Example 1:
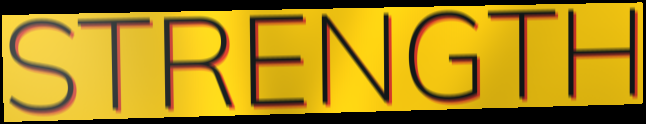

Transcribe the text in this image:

STRENGTH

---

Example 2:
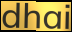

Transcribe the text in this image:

dhai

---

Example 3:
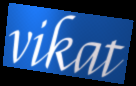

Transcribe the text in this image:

vikat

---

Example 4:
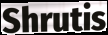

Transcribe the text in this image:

Shrutis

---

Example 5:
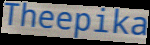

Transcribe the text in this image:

Theepika